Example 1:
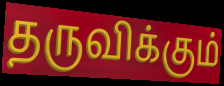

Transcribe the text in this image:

தருவிக்கும்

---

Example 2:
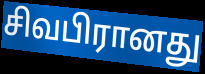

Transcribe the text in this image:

சிவபிரானது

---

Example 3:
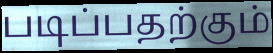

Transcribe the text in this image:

படிப்பதற்கும்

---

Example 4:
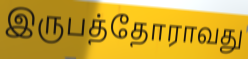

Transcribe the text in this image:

இருபத்தோராவது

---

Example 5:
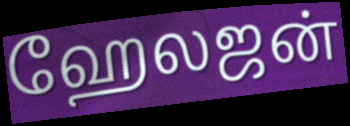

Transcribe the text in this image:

ஹேலஜன்